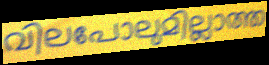
വിലപോലുമില്ലാത്ത